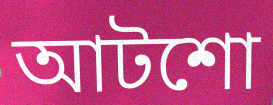
আটশো